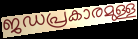
ജഡപ്രകാരമുള്ള